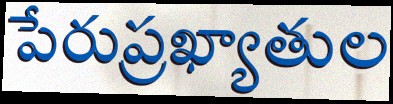
పేరుప్రఖ్యాతుల